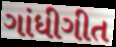
ગાંધીગીત